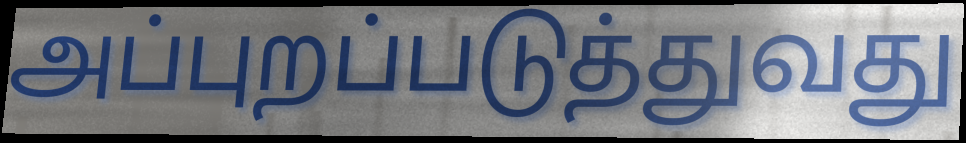
அப்புறப்படுத்துவது